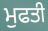
ਮੁਫਤੀ